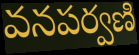
వనపర్వణి